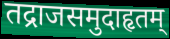
तद्राजसमुदाहृतम्